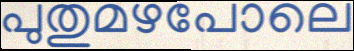
പുതുമഴപോലെ